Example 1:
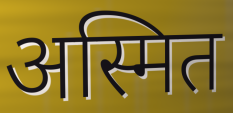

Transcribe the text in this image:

अस्मित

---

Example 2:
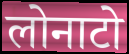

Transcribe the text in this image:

लोनाटो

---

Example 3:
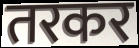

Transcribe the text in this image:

तरकर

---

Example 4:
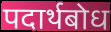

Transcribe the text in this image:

पदार्थबोध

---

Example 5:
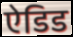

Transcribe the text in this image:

ऐडिड